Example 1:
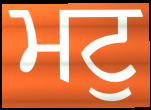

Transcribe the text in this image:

ਮਟੁ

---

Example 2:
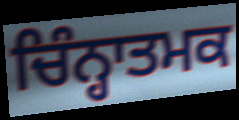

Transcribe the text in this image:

ਚਿੰਨ੍ਹਾਤਮਕ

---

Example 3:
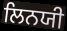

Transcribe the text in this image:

ਲਿਨਯੀ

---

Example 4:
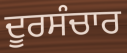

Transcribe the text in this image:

ਦੂਰਸੰਚਾਰ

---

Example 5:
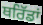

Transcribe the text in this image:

ਥਰਿੱਡਾਂ